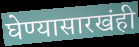
घेण्यासारखंही